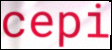
cepi